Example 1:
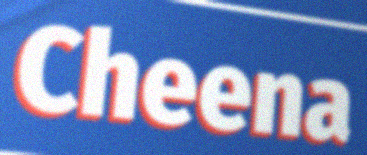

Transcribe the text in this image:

Cheena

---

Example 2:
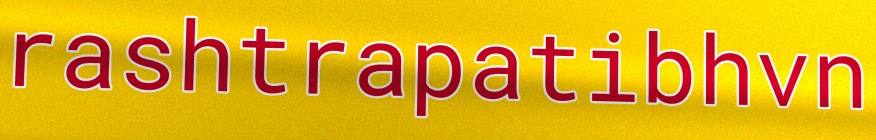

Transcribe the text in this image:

rashtrapatibhvn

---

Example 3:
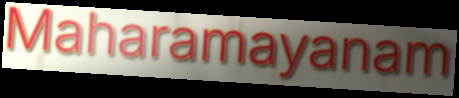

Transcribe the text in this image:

Maharamayanam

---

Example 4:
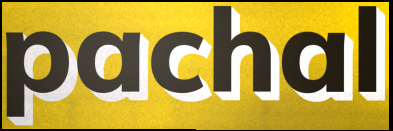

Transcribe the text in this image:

pachal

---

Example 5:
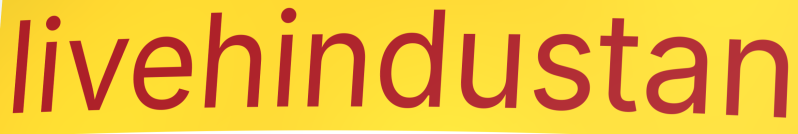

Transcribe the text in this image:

livehindustan